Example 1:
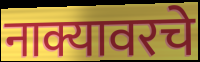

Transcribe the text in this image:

नाक्यावरचे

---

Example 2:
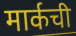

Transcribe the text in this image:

मार्कची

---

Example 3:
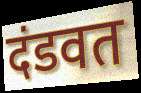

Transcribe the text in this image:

दंडवत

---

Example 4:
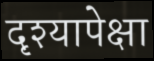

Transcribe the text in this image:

दृश्यापेक्षा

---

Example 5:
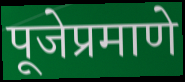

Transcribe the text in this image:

पूजेप्रमाणे